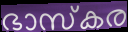
ഭാസ്കര